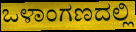
ಒಳಾಂಗಣದಲ್ಲಿ